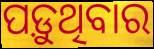
ପଡ଼ୁଥିବାର